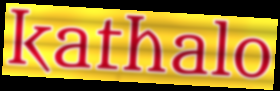
kathalo